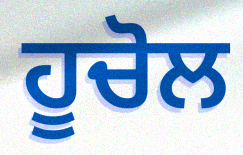
ਹੂਚੋਲ